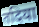
तदिया